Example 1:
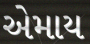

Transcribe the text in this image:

એમાય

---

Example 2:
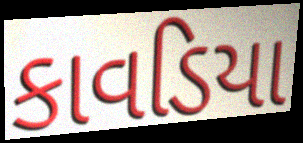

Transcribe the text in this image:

કાવડિયા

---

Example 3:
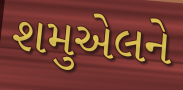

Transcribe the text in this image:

શમુએલને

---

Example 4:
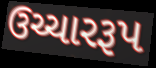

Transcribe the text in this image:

ઉચ્ચારરૂપ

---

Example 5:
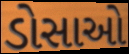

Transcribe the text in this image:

ડોસાઓ